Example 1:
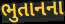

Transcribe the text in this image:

ભુતાનના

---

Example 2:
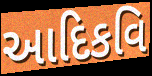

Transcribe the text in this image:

આદિકવિ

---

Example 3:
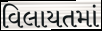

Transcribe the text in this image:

વિલાયતમાં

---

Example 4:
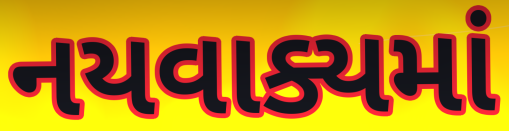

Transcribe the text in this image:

નયવાક્યમાં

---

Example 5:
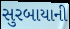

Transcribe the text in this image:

સુરબાયાની